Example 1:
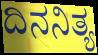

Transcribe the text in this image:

ದಿನನಿತ್ಯ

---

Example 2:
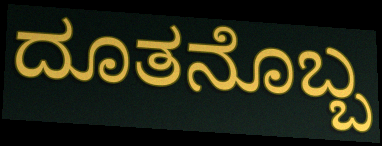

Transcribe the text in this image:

ದೂತನೊಬ್ಬ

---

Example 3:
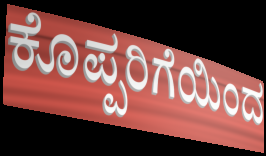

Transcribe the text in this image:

ಕೊಪ್ಪರಿಗೆಯಿಂದ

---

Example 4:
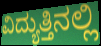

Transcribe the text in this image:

ವಿದ್ಯುತ್ತಿನಲ್ಲಿ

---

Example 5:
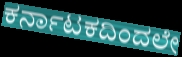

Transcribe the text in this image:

ಕರ್ನಾಟಕದಿಂದಲೇ